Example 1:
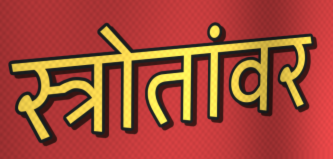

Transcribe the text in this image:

स्त्रोतांवर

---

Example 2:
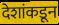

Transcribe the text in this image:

देशांकडून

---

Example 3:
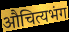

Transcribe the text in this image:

औचित्यभंग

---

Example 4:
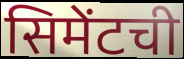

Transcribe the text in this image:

सिमेंटची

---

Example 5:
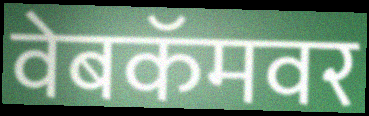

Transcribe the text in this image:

वेबकॅमवर